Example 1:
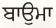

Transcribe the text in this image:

ਬਾਉਮਾ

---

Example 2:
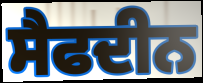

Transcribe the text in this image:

ਸੈਫਦੀਨ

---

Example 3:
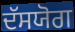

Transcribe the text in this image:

ਦੱਸਯੋਗ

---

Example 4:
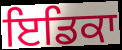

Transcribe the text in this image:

ਇਡਿਕਾ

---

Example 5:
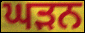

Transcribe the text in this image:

ਘੜਨ